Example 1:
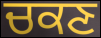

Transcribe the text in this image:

ਚਕਣ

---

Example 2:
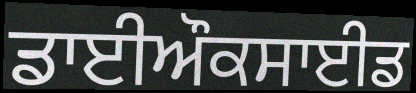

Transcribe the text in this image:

ਡਾਈਔਕਸਾਈਡ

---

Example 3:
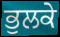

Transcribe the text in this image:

ਭੁਲਕੇ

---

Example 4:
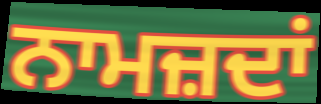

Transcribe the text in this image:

ਨਾਮਜ਼ਦਾਂ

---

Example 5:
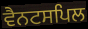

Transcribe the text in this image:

ਵੈਨਟਸਪਿਲ